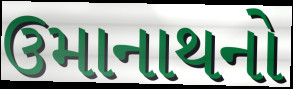
ઉમાનાથનો